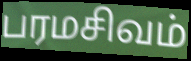
பரமசிவம்